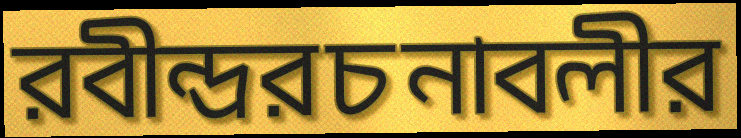
রবীন্দ্ররচনাবলীর